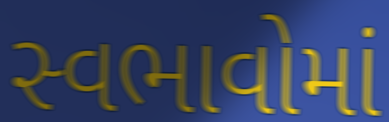
સ્વભાવોમાં